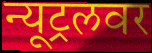
न्यूट्रलवर